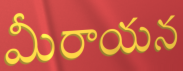
మీరాయన